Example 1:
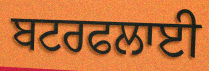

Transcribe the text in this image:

ਬਟਰਫਲਾਈ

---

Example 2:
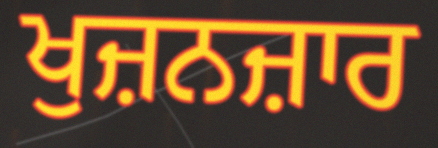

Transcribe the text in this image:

ਖੁਜ਼ਨਜ਼ਾਰ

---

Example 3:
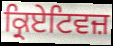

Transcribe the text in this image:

ਕ੍ਰਿਏਟਿਵਜ਼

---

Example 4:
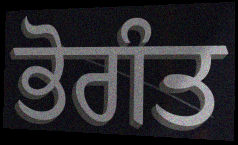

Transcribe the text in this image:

ਭੋਗੰਤ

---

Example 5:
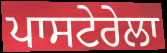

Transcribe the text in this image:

ਪਾਸਟੇਰੇਲਾ